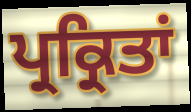
ਪ੍ਰਕ੍ਰਿਤਾਂ